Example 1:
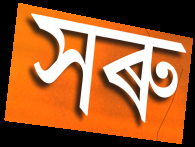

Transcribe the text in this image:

সৰু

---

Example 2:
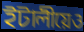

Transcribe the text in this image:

ইটালীয়েও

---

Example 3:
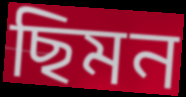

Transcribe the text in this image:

ছিমন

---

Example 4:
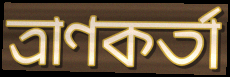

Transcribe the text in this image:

ত্ৰাণকৰ্তা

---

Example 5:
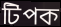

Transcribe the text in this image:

টিপক